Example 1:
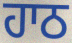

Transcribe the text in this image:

ਹਾਠ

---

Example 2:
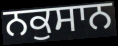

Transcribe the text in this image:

ਨਕੁਸਾਨ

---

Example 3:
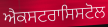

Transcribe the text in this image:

ਐਕਸਟਰਾਸਿਸਟੋਲ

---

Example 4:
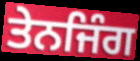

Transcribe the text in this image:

ਤੇਨਜਿੰਗ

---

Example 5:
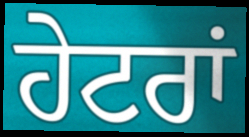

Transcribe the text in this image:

ਹੇਟਰਾਂ